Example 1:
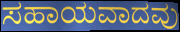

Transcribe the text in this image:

ಸಹಾಯವಾದವು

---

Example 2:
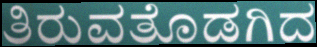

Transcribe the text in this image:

ತಿರುವತೊಡಗಿದ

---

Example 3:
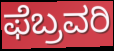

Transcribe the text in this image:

ಫೆಬ್ರವರಿ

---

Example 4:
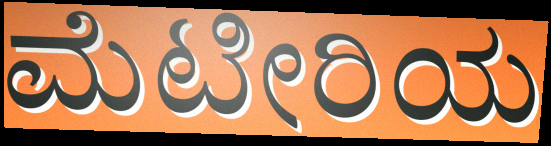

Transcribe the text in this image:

ಮೆಟೀರಿಯ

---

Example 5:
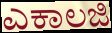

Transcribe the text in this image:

ಎಕಾಲಜಿ